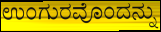
ಉಂಗುರವೊಂದನ್ನು